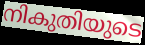
നികുതിയുടെ